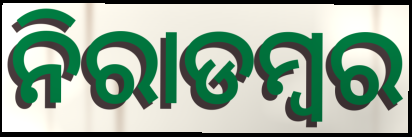
ନିରାଡମ୍ଵର